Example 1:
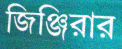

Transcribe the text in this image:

জিঞ্জিরার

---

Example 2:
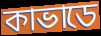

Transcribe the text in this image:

কাভাডে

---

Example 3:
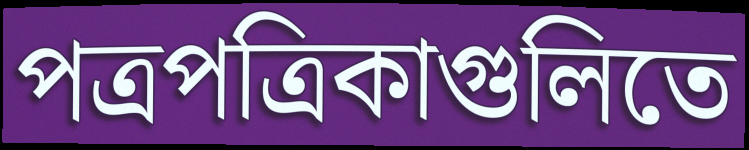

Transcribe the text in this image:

পত্রপত্রিকাগুলিতে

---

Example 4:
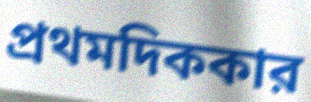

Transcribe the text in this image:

প্রথমদিককার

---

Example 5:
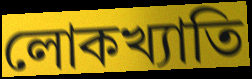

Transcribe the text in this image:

লোকখ্যাতি